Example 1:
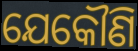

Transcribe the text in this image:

ଯେକୌଣି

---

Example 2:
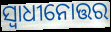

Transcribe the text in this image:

ସ୍ୱାଧୀନୋତ୍ତର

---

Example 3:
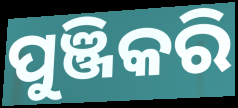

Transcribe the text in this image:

ପୁଞ୍ଜିକରି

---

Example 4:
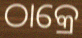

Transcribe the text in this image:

ଠାକ୍ରେ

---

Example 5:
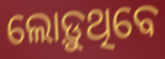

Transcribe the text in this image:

ଲୋଡ଼ୁଥିବେ